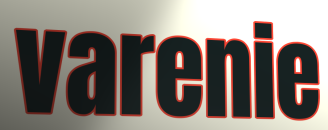
varenie